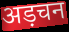
अड़चन